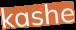
kashe